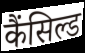
कैंसिल्ड